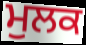
ਮੁਲਕ